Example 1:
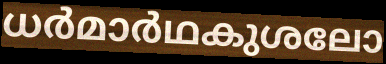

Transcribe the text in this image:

ധർമാർഥകുശലോ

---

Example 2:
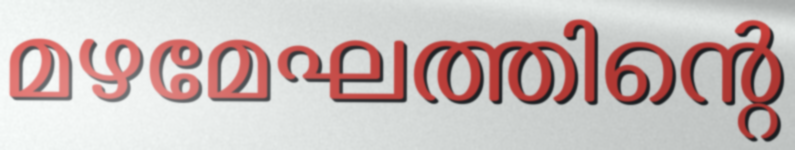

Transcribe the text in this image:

മഴമേഘത്തിന്റെ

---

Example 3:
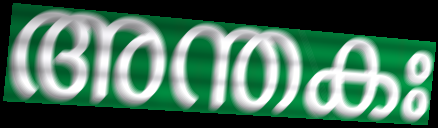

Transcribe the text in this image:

അന്തകഃ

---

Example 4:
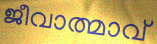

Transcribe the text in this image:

ജീവാത്മാവ്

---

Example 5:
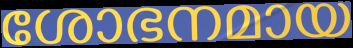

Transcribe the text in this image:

ശോഭനമായ